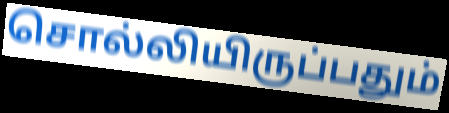
சொல்லியிருப்பதும்